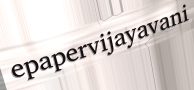
epapervijayavani